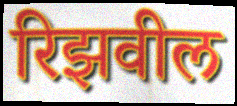
रिझवील